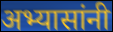
अभ्यासांनी